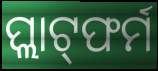
ପ୍ଲାଟ୍‌ଫର୍ମ